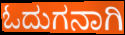
ಓದುಗನಾಗಿ